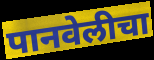
पानवेलीचा